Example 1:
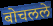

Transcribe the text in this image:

बोचलले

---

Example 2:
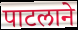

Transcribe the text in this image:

पाटलाने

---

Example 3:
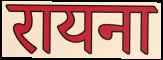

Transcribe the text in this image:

रायना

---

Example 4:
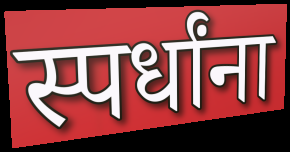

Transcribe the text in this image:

स्पर्धांना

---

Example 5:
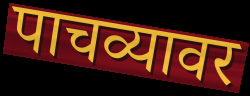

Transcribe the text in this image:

पाचव्यावर